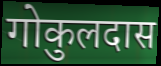
गोकुलदास